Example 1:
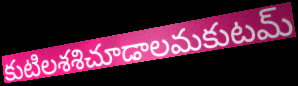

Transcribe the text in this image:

కుటిలశశిచూడాలమకుటమ్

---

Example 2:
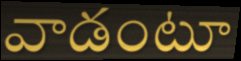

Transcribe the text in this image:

వాడంటూ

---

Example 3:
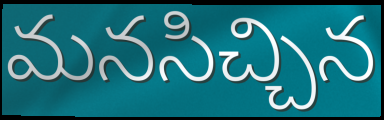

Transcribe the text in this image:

మనసిచ్చిన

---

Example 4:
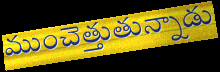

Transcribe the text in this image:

ముంచెత్తుతున్నాడు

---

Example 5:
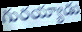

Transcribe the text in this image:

గురయ్యాడు